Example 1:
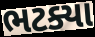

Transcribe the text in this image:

ભટક્યા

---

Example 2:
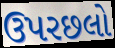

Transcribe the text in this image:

ઉપરછલો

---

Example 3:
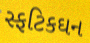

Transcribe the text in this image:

સ્ફટિકઘન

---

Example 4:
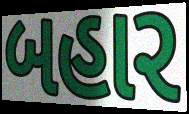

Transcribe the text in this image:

બહાર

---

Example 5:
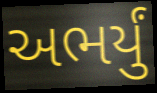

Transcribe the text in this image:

અભર્યું